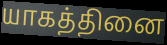
யாகத்தினை